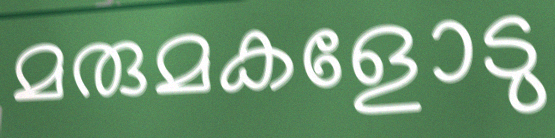
മരുമകളോടു